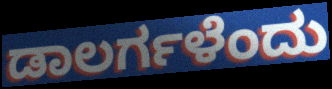
ಡಾಲರ್ಗಳೆಂದು